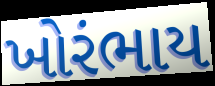
ખોરંભાય